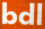
bdl